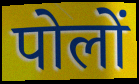
पोलों